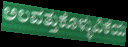
ಅಲವತ್ತುಕೊಳ್ಳುವಿಕೆಯ